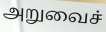
அறுவைச்